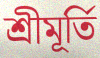
শ্রীমূর্তি